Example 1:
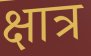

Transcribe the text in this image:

क्षात्र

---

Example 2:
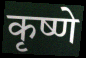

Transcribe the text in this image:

कृष्णे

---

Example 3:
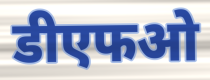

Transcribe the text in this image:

डीएफओ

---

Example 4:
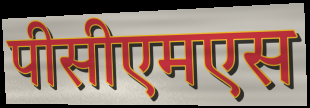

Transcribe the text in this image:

पीसीएमएस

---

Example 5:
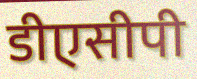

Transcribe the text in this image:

डीएसीपी